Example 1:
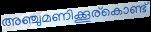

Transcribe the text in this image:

അഞ്ചുമണിക്കൂര്കൊണ്ട്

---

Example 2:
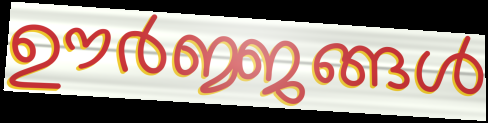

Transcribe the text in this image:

ഊർജ്ജങ്ങൾ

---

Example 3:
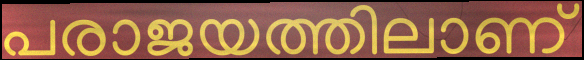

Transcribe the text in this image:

പരാജയത്തിലാണ്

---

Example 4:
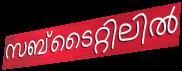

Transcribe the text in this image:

സബ്ടൈറ്റിലിൽ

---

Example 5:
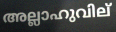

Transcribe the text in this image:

അല്ലാഹുവില്